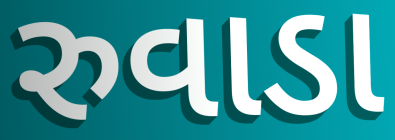
રુવાડા